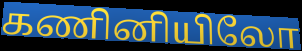
கணினியிலோ